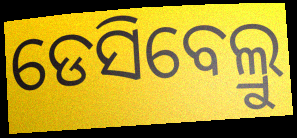
ଡେସିବେଲ୍ରୁ